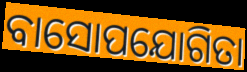
ବାସୋପଯୋଗିତା